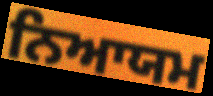
ਨਿਆਯਮ